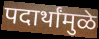
पदार्थांमुळे